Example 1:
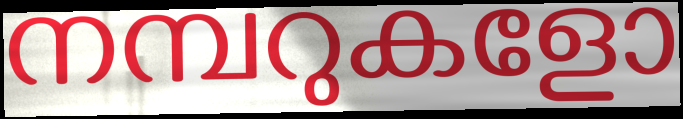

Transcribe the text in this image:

നമ്പറുകളോ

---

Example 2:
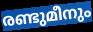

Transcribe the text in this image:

രണ്ടുമീനും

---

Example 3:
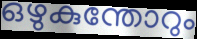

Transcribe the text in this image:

ഒഴുകുന്തോറും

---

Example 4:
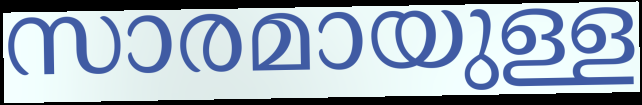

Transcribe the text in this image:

സാരമായുള്ള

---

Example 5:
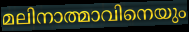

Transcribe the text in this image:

മലിനാത്മാവിനെയും